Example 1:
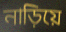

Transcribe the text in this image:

নাড়িয়ে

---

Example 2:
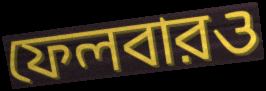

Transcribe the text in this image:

ফেলবারও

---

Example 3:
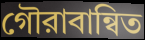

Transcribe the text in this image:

গৌরাবান্বিত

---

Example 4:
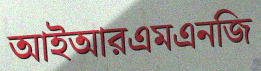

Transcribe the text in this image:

আইআরএমএনজি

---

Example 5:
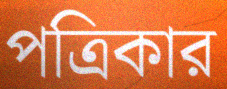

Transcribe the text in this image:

পত্রিকার